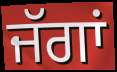
ਜੱਗਾਂ